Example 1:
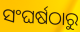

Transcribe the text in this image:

ସଂଘର୍ଷଠାରୁ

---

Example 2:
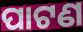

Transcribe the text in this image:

ପାଟଣ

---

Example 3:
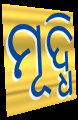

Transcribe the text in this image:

ମୂଦ୍ଧି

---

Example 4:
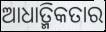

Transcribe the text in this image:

ଆଧାତ୍ମିକତାର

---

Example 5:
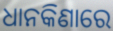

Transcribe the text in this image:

ଧାନକିଣାରେ